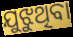
ଯୁଝୁଥିବା